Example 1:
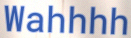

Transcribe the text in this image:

Wahhhh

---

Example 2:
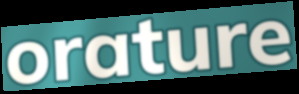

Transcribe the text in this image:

orature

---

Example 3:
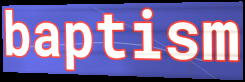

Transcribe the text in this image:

baptism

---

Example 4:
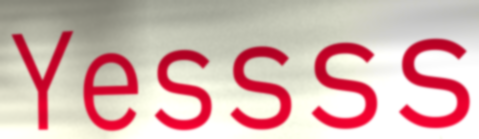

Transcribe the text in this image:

Yessss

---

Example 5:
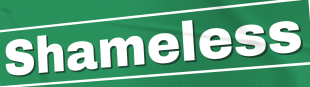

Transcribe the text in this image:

Shameless